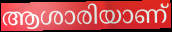
ആശാരിയാണ്